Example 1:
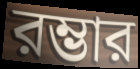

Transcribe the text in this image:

রম্ভার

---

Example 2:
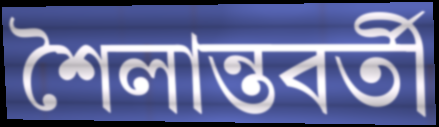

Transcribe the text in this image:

শৈলান্তবর্তী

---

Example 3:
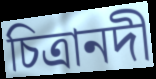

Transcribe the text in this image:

চিত্রানদী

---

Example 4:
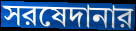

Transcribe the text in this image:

সরষেদানার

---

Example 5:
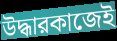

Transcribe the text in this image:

উদ্ধারকাজেই